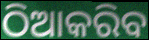
ଠିଆକରିବ